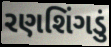
રણશિંગડું